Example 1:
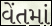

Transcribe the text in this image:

વેંતમાં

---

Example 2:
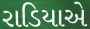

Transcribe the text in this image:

રાડિયાએ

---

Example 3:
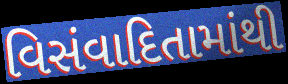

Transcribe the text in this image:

વિસંવાદિતામાંથી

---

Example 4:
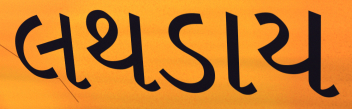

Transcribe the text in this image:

લથડાય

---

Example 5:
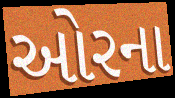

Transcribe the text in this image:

ઓરના